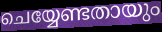
ചെയ്യേണ്ടതായും